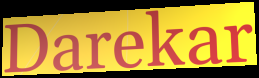
Darekar